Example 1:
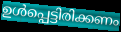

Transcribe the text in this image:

ഉൾപ്പെട്ടിരിക്കണം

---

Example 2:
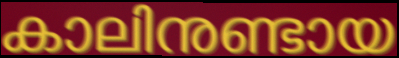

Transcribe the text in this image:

കാലിനുണ്ടായ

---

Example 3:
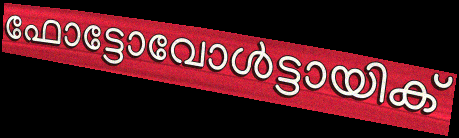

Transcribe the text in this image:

ഫോട്ടോവോൾട്ടായിക്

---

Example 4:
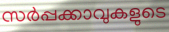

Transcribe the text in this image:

സർപ്പക്കാവുകളുടെ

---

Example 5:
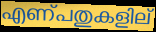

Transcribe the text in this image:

എണ്പതുകളില്